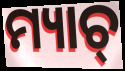
ମ୍ୟାଚ୍